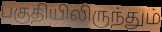
பகுதியிலிருந்தும்